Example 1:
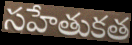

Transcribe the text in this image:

సహేతుకత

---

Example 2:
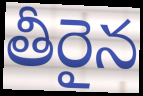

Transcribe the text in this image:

తీరైన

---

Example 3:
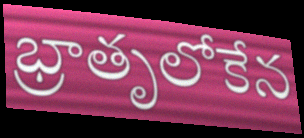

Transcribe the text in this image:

భ్రాతృలోకేన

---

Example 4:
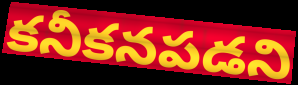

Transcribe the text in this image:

కనీకనపడని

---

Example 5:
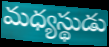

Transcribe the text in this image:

మధ్యస్థుడు